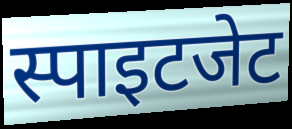
स्पाइटजेट